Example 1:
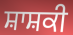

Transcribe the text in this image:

ਸ਼ਾਸ਼ਕੀ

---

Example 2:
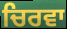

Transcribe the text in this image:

ਚਿਰਵਾ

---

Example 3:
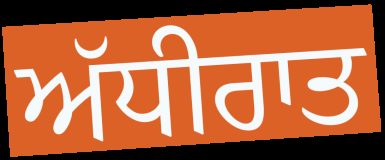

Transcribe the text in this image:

ਅੱਧੀਰਾਤ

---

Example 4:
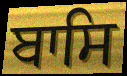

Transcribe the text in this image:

ਬਾਸਿ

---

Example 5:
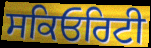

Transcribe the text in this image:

ਸਕਿਓਰਿਟੀ